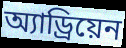
অ্যাড্রিয়েন